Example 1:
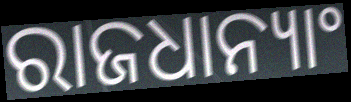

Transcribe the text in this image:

ରାଜଧାନ୍ୟାଂ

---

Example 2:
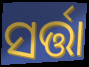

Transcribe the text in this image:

ସର୍ତ୍ତା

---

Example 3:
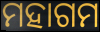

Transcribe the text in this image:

ମହାଗମ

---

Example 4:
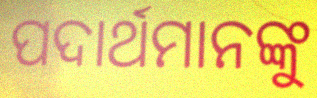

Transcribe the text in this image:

ପଦାର୍ଥମାନଙ୍କୁ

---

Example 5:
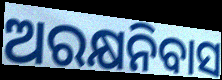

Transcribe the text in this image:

ଅରକ୍ଷନିବାସ